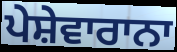
ਪੇਸ਼ੇਵਾਰਾਨਾ